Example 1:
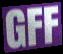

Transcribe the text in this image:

GFF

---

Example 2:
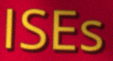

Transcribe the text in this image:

ISEs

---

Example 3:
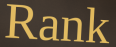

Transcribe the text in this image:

Rank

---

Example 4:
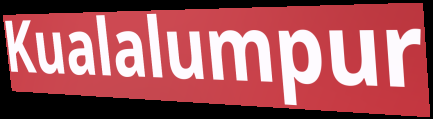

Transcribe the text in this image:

Kualalumpur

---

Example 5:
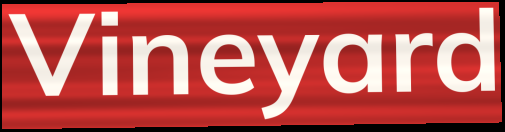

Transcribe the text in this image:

Vineyard